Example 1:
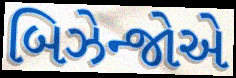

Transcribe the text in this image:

બિઝેન્જોએ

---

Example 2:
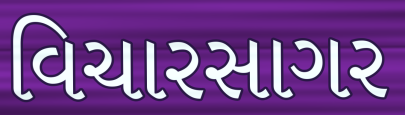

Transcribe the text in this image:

વિચારસાગર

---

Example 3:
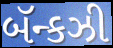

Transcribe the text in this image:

બૅન્કઝી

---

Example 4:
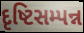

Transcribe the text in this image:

દૃષ્ટિસમ્પન્ન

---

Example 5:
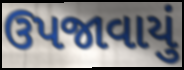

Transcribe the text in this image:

ઉપજાવાયું